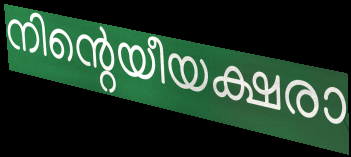
നിന്റെയീയക്ഷരാ